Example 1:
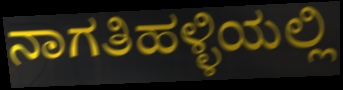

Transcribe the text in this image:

ನಾಗತಿಹಳ್ಳಿಯಲ್ಲಿ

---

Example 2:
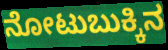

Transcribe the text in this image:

ನೋಟುಬುಕ್ಕಿನ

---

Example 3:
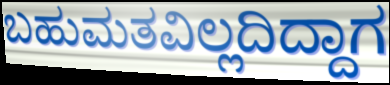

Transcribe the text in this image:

ಬಹುಮತವಿಲ್ಲದಿದ್ದಾಗ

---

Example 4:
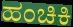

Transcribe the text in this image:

ಹಂಚಿಕಿ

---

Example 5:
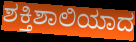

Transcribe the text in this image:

ಶಕ್ತಿಶಾಲಿಯಾದ